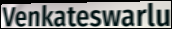
Venkateswarlu